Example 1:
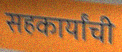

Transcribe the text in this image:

सहकार्यांची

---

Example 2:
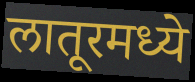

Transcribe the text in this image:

लातूरमध्ये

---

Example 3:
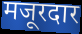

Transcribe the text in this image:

मजूरदार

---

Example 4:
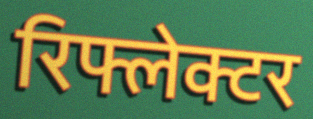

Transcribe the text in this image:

रिफ्लेक्टर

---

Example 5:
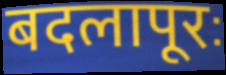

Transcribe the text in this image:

बदलापूरः